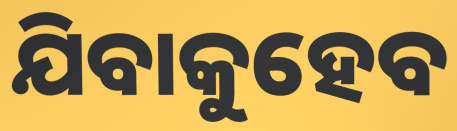
ଯିବାକୁହେବ